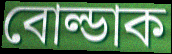
বোল্ডাক